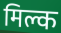
मिल्क